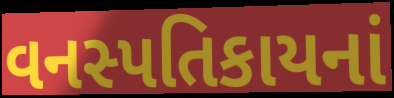
વનસ્પતિકાયનાં